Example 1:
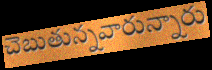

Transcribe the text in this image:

చెబుతున్నవారున్నారు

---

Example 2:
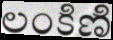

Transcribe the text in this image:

లంకిణి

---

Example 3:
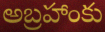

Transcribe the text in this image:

అబ్రహాంకు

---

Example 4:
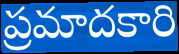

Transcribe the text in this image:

ప్రమాదకారి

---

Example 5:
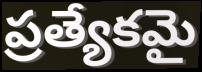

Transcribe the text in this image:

ప్రత్యేకమై